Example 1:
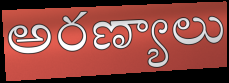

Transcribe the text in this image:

అరణ్యాలు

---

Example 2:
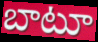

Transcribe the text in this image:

బాటూ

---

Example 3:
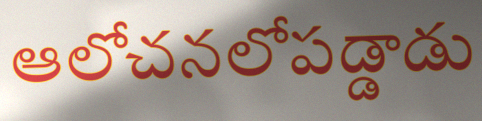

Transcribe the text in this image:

ఆలోచనలోపడ్డాడు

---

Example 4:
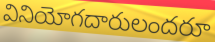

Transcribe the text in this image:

వినియోగదారులందరూ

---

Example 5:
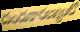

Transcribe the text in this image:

దండకారణ్యంలో